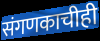
संगणकाचीही